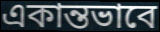
একান্তভাবে